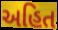
અહિત